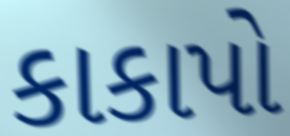
કાકાપો